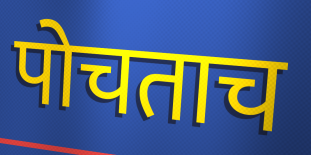
पोचताच